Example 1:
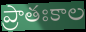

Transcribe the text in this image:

ప్రాతఃకాల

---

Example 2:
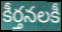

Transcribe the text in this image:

కీర్తనలకీ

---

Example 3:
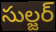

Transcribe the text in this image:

సుల్జర్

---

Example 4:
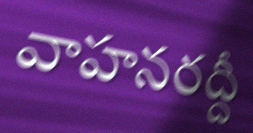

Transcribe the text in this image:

వాహనరద్దీ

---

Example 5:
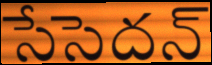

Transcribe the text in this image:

సేసెదన్